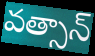
వత్సాన్